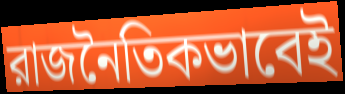
রাজনৈতিকভাবেই